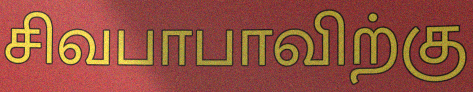
சிவபாபாவிற்கு